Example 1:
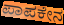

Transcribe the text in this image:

ಪಾಪಕೇನ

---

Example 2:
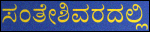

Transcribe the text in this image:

ಸಂತೇಶಿವರದಲ್ಲಿ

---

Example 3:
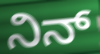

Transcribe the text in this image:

ನಿನ್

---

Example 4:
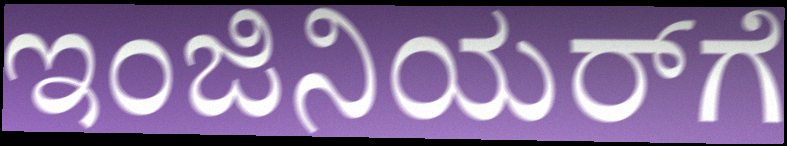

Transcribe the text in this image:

ಇಂಜಿನಿಯರ್‌ಗೆ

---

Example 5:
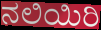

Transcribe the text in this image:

ನಲಿಯಿರಿ